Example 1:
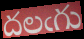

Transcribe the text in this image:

దలఁగు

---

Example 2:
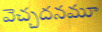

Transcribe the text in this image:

వెచ్చదనమూ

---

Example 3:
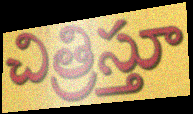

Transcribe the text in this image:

చిత్రిస్తూ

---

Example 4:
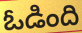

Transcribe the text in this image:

ఓడింది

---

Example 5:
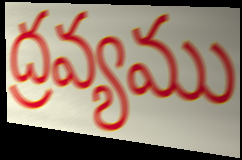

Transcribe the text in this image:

ద్రవ్యము